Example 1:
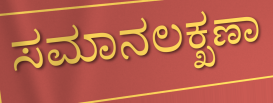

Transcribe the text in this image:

ಸಮಾನಲಕ್ಖಣಾ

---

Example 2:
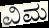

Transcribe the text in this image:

ವಿಮ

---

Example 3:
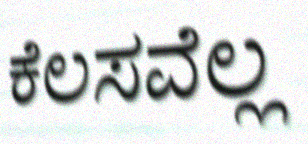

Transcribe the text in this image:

ಕೆಲಸವೆಲ್ಲ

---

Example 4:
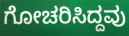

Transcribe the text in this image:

ಗೋಚರಿಸಿದ್ದವು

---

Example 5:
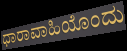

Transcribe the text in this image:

ಧಾರಾವಾಹಿಯೊಂದು